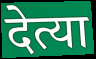
देत्या